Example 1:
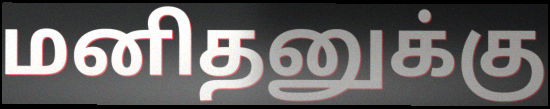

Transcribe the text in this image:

மனிதனுக்கு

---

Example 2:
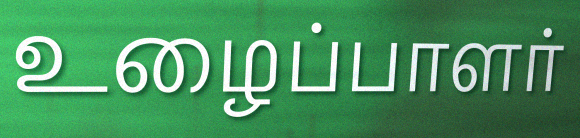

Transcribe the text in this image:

உழைப்பாளர்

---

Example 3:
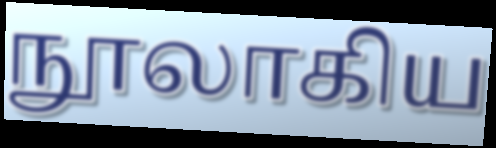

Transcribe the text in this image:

நூலாகிய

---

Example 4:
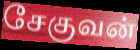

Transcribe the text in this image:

சேகுவன்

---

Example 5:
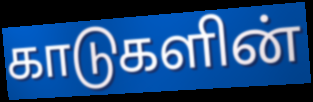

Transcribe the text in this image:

காடுகளின்